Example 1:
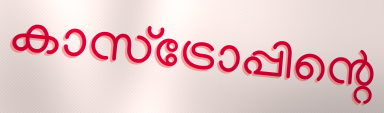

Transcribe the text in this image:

കാസ്ട്രോപ്പിന്റെ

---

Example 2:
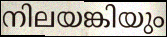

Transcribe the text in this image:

നിലയങ്കിയും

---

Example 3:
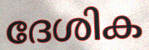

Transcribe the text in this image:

ദേശിക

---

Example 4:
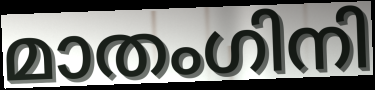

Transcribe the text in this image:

മാതംഗിനി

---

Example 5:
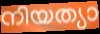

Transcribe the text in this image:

നിയത്യാ